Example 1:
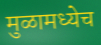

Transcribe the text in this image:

मुळामध्येच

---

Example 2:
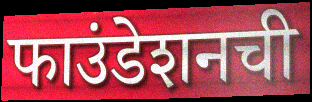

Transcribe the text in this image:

फाउंडेशनची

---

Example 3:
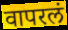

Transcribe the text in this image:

वापरलं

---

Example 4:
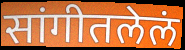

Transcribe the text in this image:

सांगीतलेलं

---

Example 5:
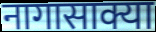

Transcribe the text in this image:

नागासाक्या